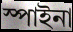
স্পাইনা